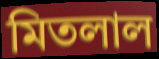
মিতলাল